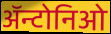
ॲन्टोनिओ